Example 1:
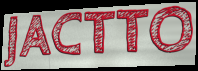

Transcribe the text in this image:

JACTTO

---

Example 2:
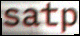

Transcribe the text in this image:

satp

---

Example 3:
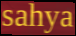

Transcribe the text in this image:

sahya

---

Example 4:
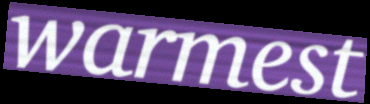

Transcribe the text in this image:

warmest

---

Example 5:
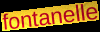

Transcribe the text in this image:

fontanelle